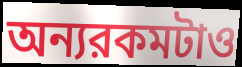
অন্যরকমটাও